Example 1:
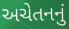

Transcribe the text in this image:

અચેતનનું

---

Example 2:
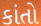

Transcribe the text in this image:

કાંતો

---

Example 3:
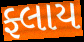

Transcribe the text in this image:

ફ્લાય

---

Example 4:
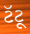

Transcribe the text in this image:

ટૅટૂ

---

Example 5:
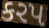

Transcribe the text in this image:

કરપ